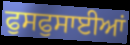
ਫੁਸਫੁਸਾਈਆਂ